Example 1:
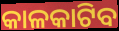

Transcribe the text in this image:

କାଳକାଟିବ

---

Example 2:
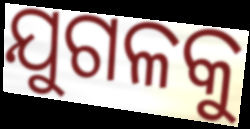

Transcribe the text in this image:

ଯୁଗଳକୁ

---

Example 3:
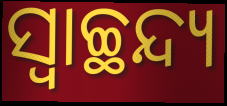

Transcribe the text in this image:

ସ୍ୱାଚ୍ଛନ୍ଦ୍ୟ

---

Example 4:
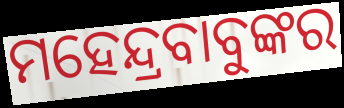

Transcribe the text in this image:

ମହେନ୍ଦ୍ରବାବୁଙ୍କର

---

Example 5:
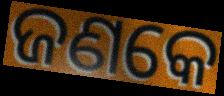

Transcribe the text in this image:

ଜଣକେ